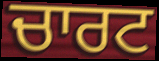
ਚਾਰਟ